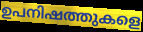
ഉപനിഷത്തുകളെ